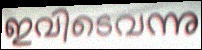
ഇവിടെവന്നു